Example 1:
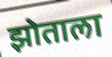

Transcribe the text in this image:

झोताला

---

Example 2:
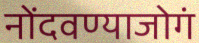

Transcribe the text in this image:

नोंदवण्याजोगं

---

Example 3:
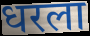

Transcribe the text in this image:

धरला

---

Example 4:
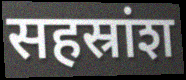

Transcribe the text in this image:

सहस्रांश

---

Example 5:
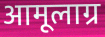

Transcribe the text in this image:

आमूलाग्र